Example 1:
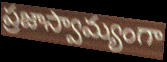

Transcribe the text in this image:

ప్రజాస్వామ్యంగా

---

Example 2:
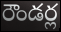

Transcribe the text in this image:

రౌండర్ల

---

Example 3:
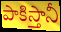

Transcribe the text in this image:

పాకిస్తానీ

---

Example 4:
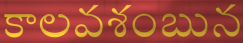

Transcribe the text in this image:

కాలవశంబున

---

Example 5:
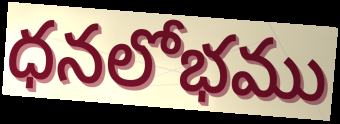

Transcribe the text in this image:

ధనలోభము